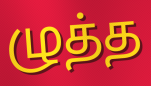
ழுத்த